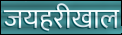
जयहरीखाल